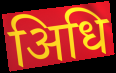
अिधि